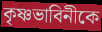
কৃষ্ণভাবিনীকে